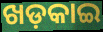
ଖଡ଼କାଇ